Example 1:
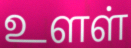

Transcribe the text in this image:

உளள்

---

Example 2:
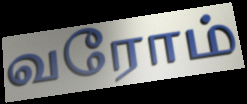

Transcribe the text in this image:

வரோம்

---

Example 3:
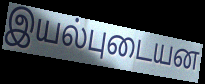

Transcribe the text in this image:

இயல்புடையன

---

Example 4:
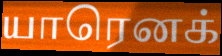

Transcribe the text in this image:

யாரெனக்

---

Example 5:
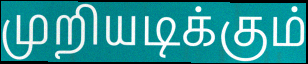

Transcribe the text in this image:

முறியடிக்கும்